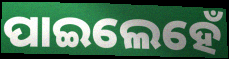
ପାଇଲେହେଁ